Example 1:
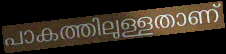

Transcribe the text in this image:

പാകത്തിലുള്ളതാണ്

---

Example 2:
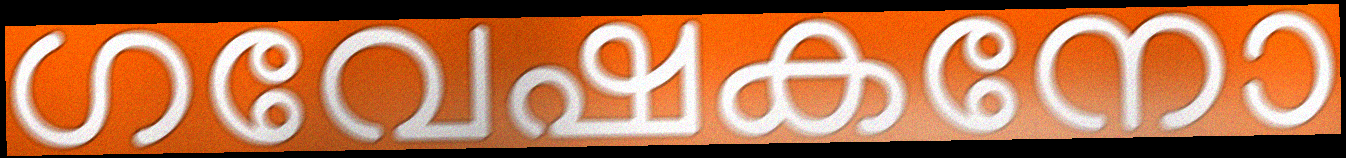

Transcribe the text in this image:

ഗവേഷകനോ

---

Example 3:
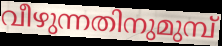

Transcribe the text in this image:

വീഴുന്നതിനുമുമ്പ്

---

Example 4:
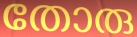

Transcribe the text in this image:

തോരു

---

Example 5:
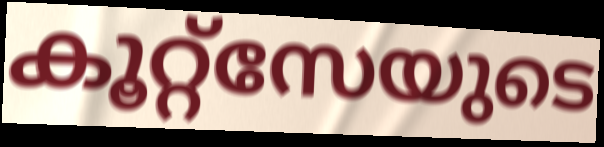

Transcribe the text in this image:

കൂറ്റ്സേയുടെ